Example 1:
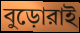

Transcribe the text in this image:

বুড়োরাই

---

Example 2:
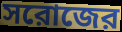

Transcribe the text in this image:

সরোজের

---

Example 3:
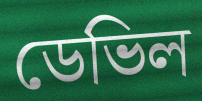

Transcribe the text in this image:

ডেভিল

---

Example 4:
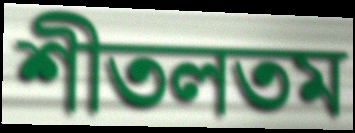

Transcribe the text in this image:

শীতলতম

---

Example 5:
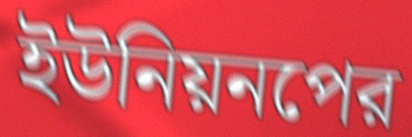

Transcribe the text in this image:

ইউনিয়নপের